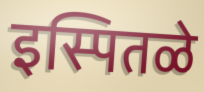
इस्पितळे